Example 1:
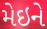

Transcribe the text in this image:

મેઇને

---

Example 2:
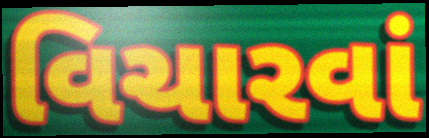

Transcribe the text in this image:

વિચારવાં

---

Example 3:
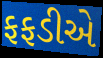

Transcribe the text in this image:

ફફડીએ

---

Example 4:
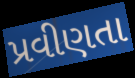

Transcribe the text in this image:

પ્રવીણતા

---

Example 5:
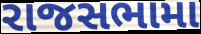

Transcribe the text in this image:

રાજસભામા